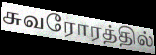
சுவரோரத்தில்